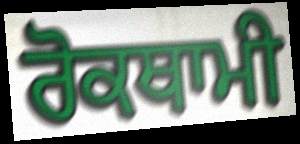
ਰੋਕਥਾਮੀ